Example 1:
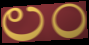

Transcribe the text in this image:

లం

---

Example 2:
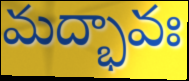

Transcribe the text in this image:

మద్భావః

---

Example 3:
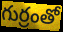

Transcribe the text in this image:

గుర్రంతో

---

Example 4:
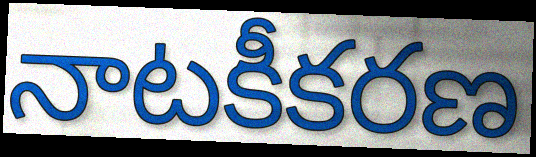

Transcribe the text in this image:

నాటకీకరణ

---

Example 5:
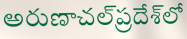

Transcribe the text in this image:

అరుణాచల్‌ప్రదేశ్‌లో